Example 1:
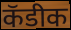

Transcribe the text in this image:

कॅडीक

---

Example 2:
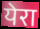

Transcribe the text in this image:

येरा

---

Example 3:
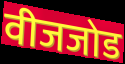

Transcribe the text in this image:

वीजजोड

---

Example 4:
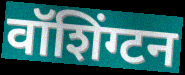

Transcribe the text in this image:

वॉशिंग्टन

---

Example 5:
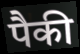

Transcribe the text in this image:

पैकी